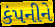
કંપનીને